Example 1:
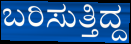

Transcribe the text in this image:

ಬರಿಸುತ್ತಿದ್ದ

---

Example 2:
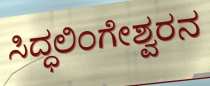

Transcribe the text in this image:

ಸಿದ್ಧಲಿಂಗೇಶ್ವರನ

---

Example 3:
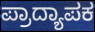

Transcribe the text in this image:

ಪ್ರಾದ್ಯಾಪಕ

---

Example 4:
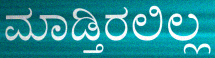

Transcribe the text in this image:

ಮಾಡ್ತಿರಲಿಲ್ಲ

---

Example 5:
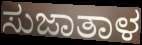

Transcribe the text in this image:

ಸುಜಾತಾಳ